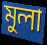
মুলা